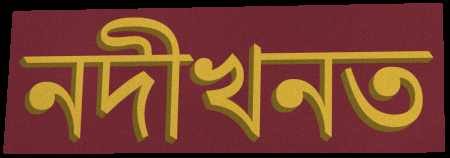
নদীখনত